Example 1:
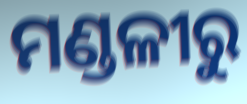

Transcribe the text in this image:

ମଣ୍ଡଳୀରୁ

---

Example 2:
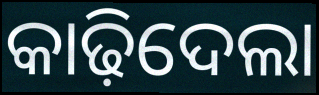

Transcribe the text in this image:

କାଢ଼ିଦେଲା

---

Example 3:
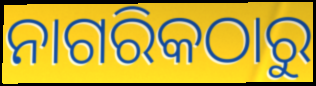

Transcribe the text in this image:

ନାଗରିକଠାରୁ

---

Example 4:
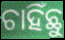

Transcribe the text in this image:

ଚାହିଁଛୁ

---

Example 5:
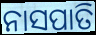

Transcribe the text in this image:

ନାସପାତି